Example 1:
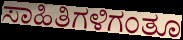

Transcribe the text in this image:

ಸಾಹಿತಿಗಳಿಗಂತೂ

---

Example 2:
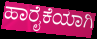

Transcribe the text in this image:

ಹಾರೈಕೆಯಾಗಿ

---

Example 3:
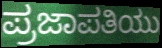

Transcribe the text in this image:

ಪ್ರಜಾಪತಿಯು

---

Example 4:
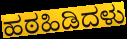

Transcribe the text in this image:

ಹಠಹಿಡಿದಳು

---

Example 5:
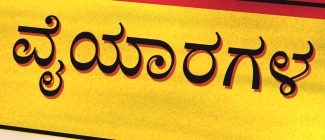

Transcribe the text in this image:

ವೈಯಾರಗಳ